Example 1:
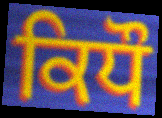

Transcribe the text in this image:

ਕਿਧੌ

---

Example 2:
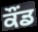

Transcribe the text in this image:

ਕੌਂਡ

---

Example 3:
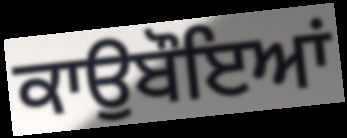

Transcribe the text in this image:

ਕਾਉਬੌਇਆਂ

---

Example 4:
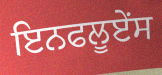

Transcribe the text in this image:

ਇਨਫਲੂਏਂਸ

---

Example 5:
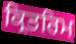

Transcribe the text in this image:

ਕ੍ਰਿਤਰਿਮ